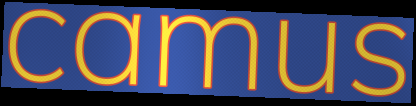
camus